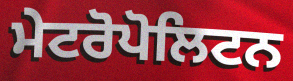
ਮੇਟਰੋਪੋਲਿਟਨ